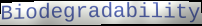
Biodegradability